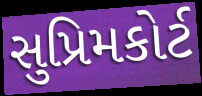
સુપ્રિમકોર્ટ